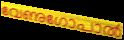
വേണുഗോപാൽ